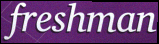
freshman